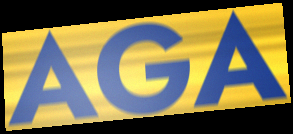
AGA